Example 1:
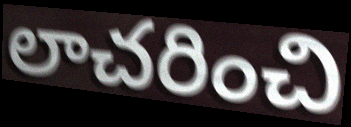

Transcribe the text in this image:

లాచరించి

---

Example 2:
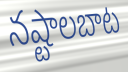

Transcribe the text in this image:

నష్టాలబాట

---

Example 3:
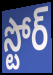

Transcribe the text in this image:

స్టోర్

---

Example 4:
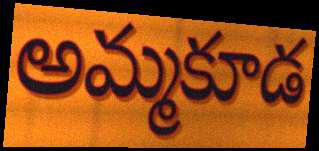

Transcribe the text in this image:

అమ్మకూడ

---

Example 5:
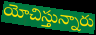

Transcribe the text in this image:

యోచిస్తున్నారు